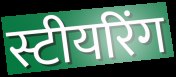
स्टीयरिंग